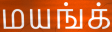
மயங்க்